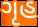
ગૃહ